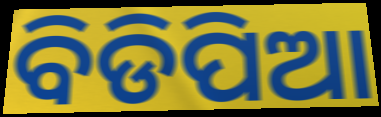
ବିଡିପିଆ